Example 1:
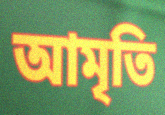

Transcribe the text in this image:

আমৃতি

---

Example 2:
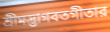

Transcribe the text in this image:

শ্রীমদ্ভাগবতগীতার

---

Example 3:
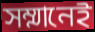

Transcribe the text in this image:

সম্মানেই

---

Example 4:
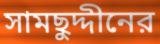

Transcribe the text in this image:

সামছুদ্দীনের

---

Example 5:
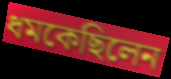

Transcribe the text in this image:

ধমকেছিলেন